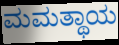
ಮಮತ್ಥಾಯ